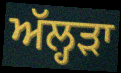
ਅੱਲ੍ਹੜਾ